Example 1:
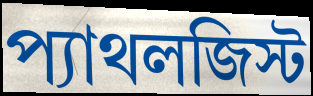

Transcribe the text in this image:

প্যাথলজিস্ট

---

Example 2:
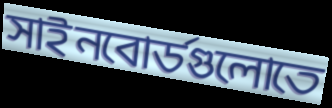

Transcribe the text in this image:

সাইনবোর্ডগুলোতে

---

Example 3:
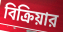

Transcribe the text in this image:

বিক্রিয়ার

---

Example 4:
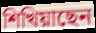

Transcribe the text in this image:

শিখিয়াছেন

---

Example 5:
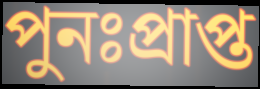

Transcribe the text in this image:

পুনঃপ্রাপ্ত